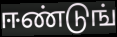
ஈண்டுங்